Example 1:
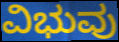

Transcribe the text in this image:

ವಿಭುವು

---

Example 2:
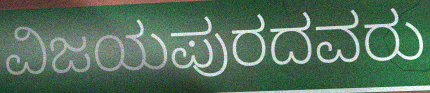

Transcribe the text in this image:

ವಿಜಯಪುರದವರು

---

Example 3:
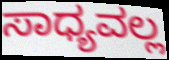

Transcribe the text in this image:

ಸಾಧ್ಯವಲ್ಲ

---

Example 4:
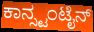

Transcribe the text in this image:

ಕಾನ್ಸ್ಟಂಟೈನ್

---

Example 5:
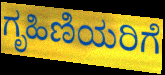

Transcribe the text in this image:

ಗೃಹಿಣಿಯರಿಗೆ